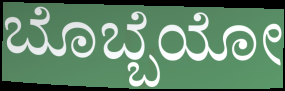
ಬೊಬ್ಬೆಯೋ